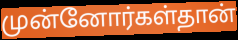
முன்னோர்கள்தான்